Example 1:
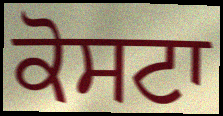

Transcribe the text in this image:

ਕੋਸਟਾ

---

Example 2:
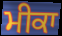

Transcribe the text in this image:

ਮੀਕਾ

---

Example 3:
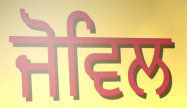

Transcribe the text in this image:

ਜੋਵਿਲ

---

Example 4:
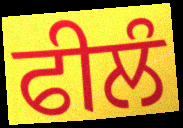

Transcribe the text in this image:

ਫੀਲੰ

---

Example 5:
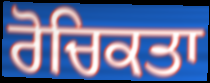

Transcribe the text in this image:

ਰੋਚਿਕਤਾ